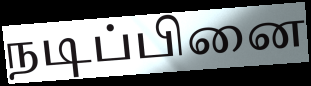
நடிப்பினை